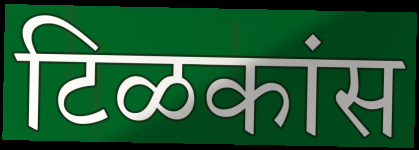
टिळकांस